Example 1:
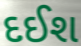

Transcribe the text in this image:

દઈશ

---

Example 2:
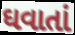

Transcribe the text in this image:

ઘવાતાં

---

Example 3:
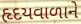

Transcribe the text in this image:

હૃદયવાળાને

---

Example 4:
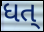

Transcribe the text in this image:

ધત્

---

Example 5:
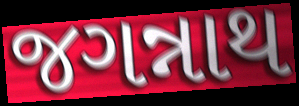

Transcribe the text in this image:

જગન્નાથ